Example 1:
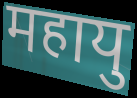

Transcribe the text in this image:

महायु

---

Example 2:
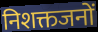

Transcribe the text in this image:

निशक्तजनों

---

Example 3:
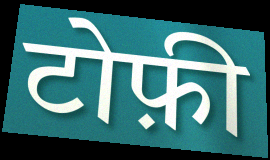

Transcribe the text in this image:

टोफ़ी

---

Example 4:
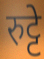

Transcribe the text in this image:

रुट्टे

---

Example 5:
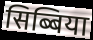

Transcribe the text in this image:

सिब्बिया